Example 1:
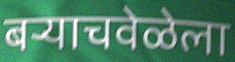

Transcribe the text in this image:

बर्‍याचवेळेला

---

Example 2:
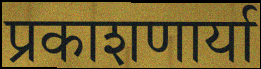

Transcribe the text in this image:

प्रकाशणार्या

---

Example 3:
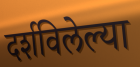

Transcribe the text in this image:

दर्शविलेल्या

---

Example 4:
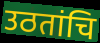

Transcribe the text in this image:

उठतांचि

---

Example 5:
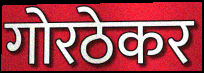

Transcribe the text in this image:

गोरठेकर